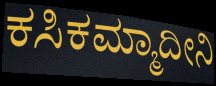
ಕಸಿಕಮ್ಮಾದೀನಿ